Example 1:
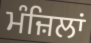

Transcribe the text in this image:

ਮੰਜ਼ਿਲਾਂ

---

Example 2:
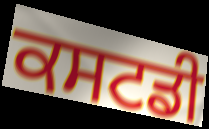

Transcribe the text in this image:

ਕਸਟਡੀ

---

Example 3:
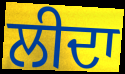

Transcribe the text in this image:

ਲੀਦਾ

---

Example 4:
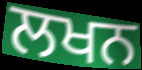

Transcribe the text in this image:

ਲਖਨ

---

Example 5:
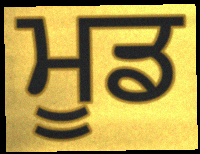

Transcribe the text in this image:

ਮੂਡ